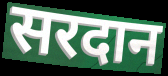
सरदान